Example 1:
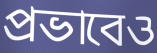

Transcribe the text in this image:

প্রভাবেও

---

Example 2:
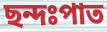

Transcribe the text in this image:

ছন্দঃপাত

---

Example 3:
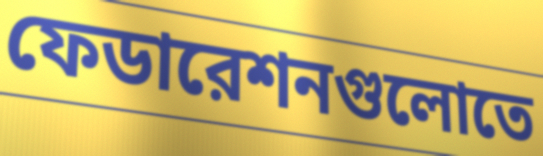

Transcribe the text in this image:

ফেডারেশনগুলোতে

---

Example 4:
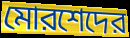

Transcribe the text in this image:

মোরশেদের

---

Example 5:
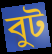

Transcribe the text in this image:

বুট